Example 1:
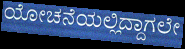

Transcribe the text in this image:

ಯೋಚನೆಯಲ್ಲಿದ್ದಾಗಲೇ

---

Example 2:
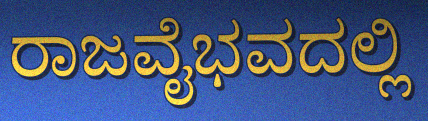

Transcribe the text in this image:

ರಾಜವೈಭವದಲ್ಲಿ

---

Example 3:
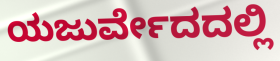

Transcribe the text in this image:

ಯಜುರ್ವೇದದಲ್ಲಿ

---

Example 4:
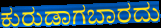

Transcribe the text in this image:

ಕುರುಡಾಗಬಾರದು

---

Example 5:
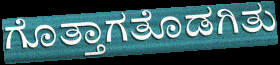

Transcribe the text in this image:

ಗೊತ್ತಾಗತೊಡಗಿತು